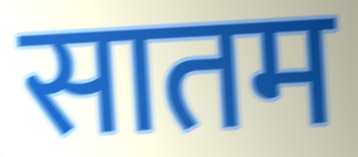
सातम